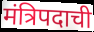
मंत्रिपदाची